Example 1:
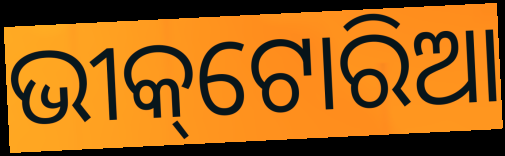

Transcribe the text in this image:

ଭୀକ୍‌ଟୋରିଆ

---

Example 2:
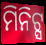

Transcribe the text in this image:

ମିନିଟ୍ସ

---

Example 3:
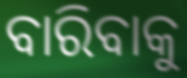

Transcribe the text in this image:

ବାରିବାକୁ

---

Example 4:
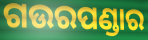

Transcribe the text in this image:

ଗଉରପଣ୍ଡାର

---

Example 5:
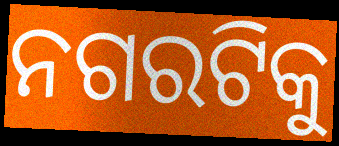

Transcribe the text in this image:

ନଗରଟିକୁ